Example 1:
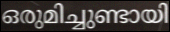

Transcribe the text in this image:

ഒരുമിച്ചുണ്ടായി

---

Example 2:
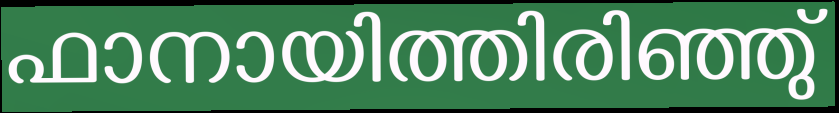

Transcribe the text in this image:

ഫാനായിത്തിരിഞ്ഞു്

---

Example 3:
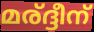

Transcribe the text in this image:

മര്ദ്ദീന്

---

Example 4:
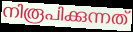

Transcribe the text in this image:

നിരൂപിക്കുന്നത്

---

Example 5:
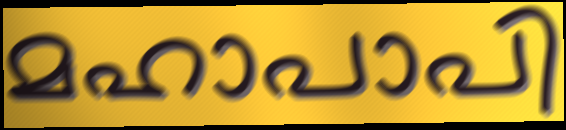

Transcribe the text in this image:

മഹാപാപി